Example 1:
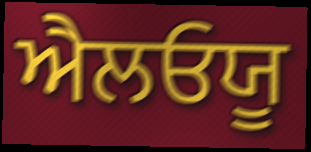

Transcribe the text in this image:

ਐਲਓਯੂ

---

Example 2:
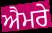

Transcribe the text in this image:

ਐਮਰੇ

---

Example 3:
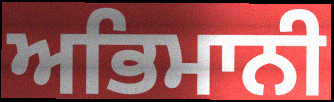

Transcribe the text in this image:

ਅਭਿਮਾਨੀ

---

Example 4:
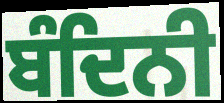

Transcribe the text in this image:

ਬੰਦਿਨੀ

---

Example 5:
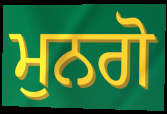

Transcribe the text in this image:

ਮੁਨਗੋ